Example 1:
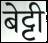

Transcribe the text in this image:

बेट्टी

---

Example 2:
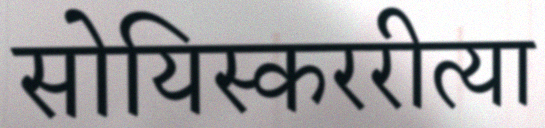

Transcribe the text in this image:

सोयिस्कररीत्या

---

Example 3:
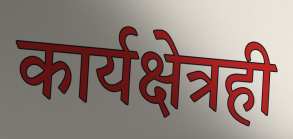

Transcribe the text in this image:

कार्यक्षेत्रही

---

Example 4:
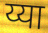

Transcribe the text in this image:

य्या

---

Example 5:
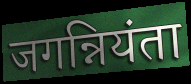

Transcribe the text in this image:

जगन्नियंता